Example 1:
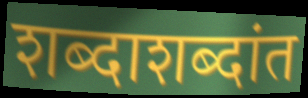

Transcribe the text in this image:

शब्दाशब्दांत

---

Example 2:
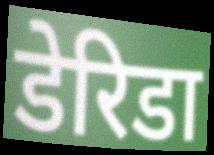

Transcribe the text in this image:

डेरिडा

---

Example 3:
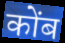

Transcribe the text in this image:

कोंब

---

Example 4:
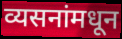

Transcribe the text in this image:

व्यसनांमधून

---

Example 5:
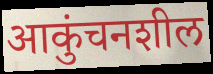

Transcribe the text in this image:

आकुंचनशील